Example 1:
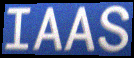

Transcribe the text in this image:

IAAS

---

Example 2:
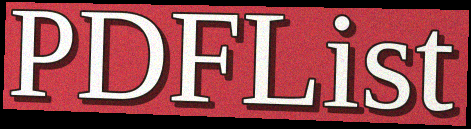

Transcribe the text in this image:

PDFList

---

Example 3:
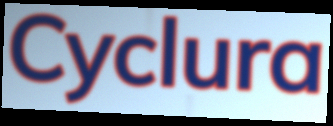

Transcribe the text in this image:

Cyclura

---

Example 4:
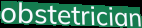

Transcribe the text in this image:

obstetrician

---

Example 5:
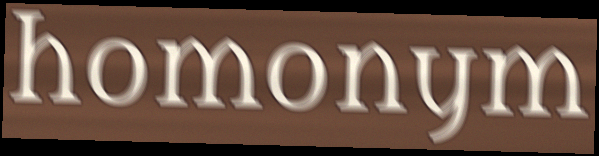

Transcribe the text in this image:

homonym